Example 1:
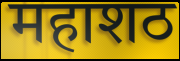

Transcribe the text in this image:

महाशठ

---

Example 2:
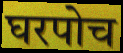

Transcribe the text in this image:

घरपोच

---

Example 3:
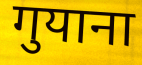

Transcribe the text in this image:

गुयाना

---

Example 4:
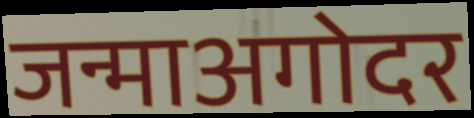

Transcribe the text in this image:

जन्माअगोदर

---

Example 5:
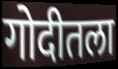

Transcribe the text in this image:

गोदीतला